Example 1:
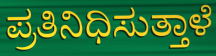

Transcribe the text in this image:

ಪ್ರತಿನಿಧಿಸುತ್ತಾಳೆ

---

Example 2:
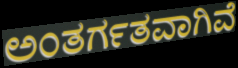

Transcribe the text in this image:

ಅಂತರ್ಗತವಾಗಿವೆ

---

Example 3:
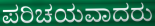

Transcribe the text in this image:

ಪರಿಚಯವಾದರು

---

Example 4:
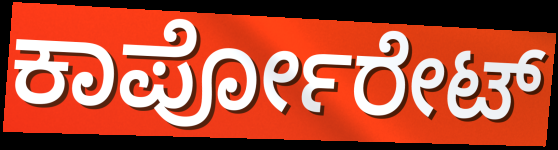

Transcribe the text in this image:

ಕಾರ್ಪೋರೇಟ್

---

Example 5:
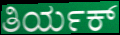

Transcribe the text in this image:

ತಿರ್ಯಕ್